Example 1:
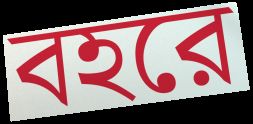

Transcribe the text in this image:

বহরে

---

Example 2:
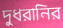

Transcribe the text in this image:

দুধরানির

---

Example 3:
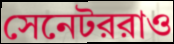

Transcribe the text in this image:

সেনেটররাও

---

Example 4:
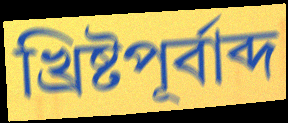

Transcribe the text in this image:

খ্রিষ্টপূর্বাব্দ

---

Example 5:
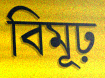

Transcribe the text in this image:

বিমূঢ়